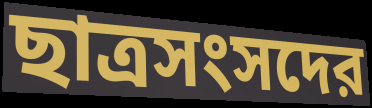
ছাত্রসংসদের